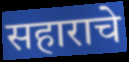
सहाराचे